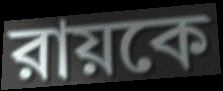
রায়কে